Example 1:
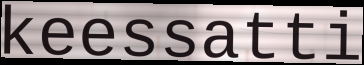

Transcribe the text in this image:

keessatti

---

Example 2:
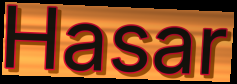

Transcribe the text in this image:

Hasar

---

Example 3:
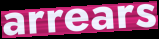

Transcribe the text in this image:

arrears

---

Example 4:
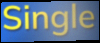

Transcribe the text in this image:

Single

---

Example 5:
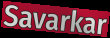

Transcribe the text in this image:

Savarkar